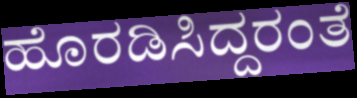
ಹೊರಡಿಸಿದ್ದರಂತೆ